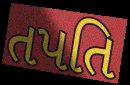
તપતિ